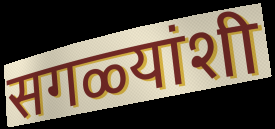
सगळ्यांशी